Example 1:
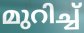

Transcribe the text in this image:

മുറിച്ച്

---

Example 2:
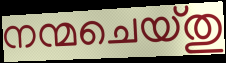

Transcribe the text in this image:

നന്മചെയ്തു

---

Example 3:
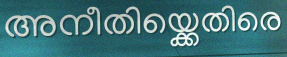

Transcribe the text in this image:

അനീതിയ്ക്കെതിരെ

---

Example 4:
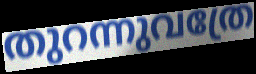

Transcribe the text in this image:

തുറന്നുവത്രേ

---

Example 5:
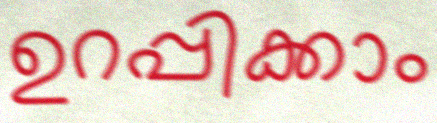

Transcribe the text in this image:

ഉറപ്പിക്കാം